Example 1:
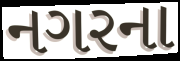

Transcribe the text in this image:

નગરના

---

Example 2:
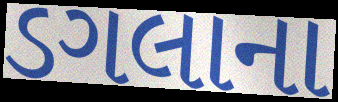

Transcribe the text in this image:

ડગલાના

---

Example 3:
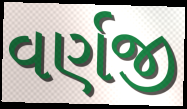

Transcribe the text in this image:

વર્ણજી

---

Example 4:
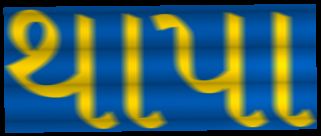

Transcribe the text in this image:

થાપા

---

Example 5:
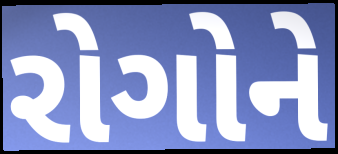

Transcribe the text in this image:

રોગોને